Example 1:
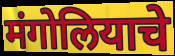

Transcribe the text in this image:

मंगोलियाचे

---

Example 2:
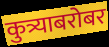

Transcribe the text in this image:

कुत्र्याबरोबर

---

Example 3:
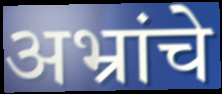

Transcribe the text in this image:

अभ्रांचे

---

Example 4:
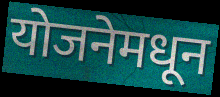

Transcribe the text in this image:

योजनेमधून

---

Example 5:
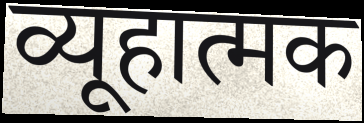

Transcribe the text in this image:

व्यूहात्मक